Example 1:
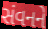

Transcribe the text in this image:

સંવનને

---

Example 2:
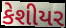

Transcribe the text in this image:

કેશીયર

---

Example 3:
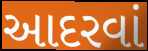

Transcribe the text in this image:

આદરવાં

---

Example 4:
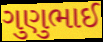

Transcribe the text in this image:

ગુણુભાઈ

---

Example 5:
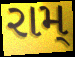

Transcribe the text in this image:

રામ્